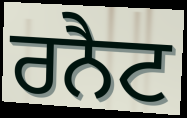
ਰਨੈਟ